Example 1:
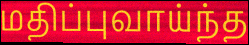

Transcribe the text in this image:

மதிப்புவாய்ந்த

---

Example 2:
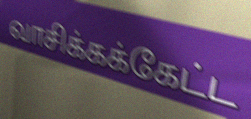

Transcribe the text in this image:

வாசிக்கக்கேட்ட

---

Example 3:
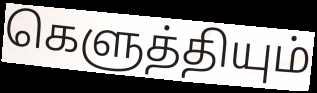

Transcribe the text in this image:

கெளுத்தியும்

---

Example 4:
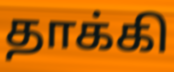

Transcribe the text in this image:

தாக்கி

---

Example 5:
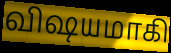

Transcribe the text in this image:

விஷயமாகி